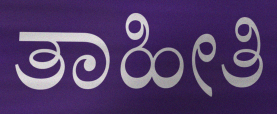
ತಾಹೀತಿ